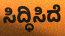
ಸಿದ್ಧಿಸಿದೆ